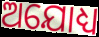
ଅଯୋଧ୍ୟ